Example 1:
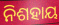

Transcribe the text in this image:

ନିଶହାୟ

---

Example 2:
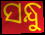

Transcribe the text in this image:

ସନ୍ଧୁ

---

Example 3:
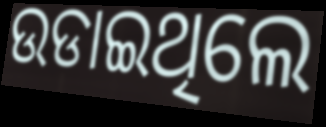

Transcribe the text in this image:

ଉଡାଇଥିଲେ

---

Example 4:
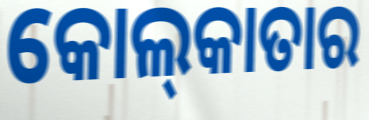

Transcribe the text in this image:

କୋଲ୍‌କାତାର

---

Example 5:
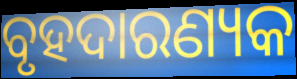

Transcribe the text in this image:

ବୃହଦାରଣ୍ୟକ